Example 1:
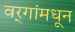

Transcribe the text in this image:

वर्गांमधून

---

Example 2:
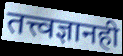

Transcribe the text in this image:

तत्त्वज्ञानही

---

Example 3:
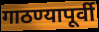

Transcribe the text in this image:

गाठण्यापूर्वी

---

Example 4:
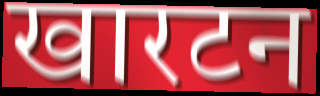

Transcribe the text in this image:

खारटन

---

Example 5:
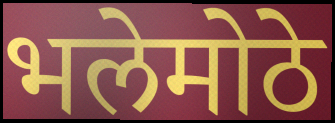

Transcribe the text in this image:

भलेमोठे